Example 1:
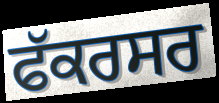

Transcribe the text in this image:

ਫੱਕਰਸਰ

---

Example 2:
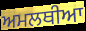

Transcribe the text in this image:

ਅਮਲਥੀਆ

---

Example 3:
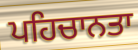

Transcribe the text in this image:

ਪਹਿਚਾਨਤਾ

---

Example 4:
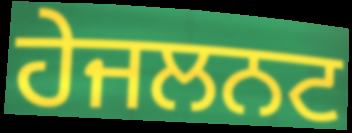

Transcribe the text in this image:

ਹੇਜਲਨਟ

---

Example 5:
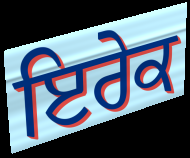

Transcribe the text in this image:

ਇਰੇਕ